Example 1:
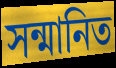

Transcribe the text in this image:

সন্মানিত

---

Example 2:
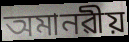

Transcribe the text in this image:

অমানৱীয়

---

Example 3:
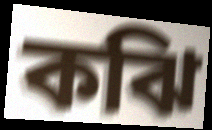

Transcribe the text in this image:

কঝি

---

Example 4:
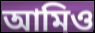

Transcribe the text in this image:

আমিও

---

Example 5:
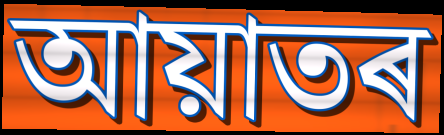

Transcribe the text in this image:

আয়াতৰ